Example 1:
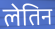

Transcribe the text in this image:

लेतिन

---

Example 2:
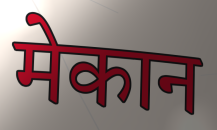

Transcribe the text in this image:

मेकान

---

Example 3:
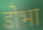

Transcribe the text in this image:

डोभा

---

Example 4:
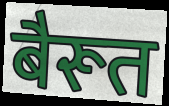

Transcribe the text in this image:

बैरूत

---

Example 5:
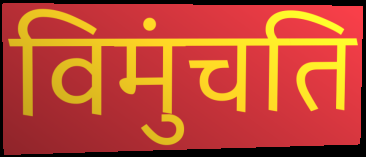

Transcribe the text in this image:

विमुंचति